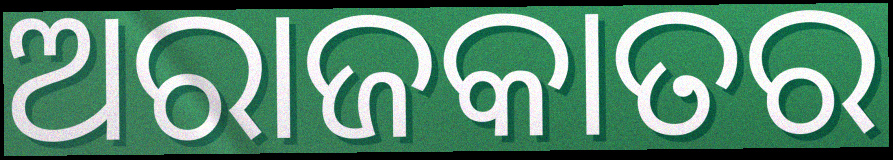
ଅରାଜକାତର